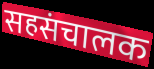
सहसंचालक